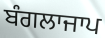
ਬੰਗਲਾਜਾਪ